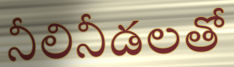
నీలినీడలతో